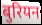
बुरियन